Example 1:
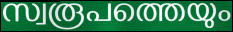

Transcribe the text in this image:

സ്വരൂപത്തെയും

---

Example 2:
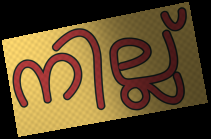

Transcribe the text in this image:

നില്ല്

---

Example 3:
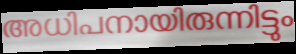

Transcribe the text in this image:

അധിപനായിരുന്നിട്ടും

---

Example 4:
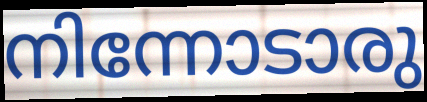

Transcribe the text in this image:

നിന്നോടാരു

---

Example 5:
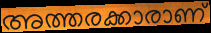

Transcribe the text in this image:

അത്തരക്കാരാണ്